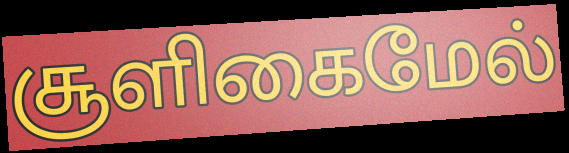
சூளிகைமேல்